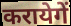
करायेगें